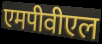
एमपीवीएल